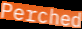
Perched